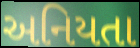
અનિયતા